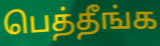
பெத்தீங்க